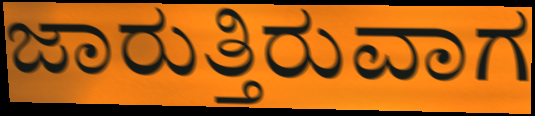
ಜಾರುತ್ತಿರುವಾಗ